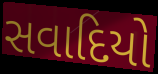
સવાદિયો